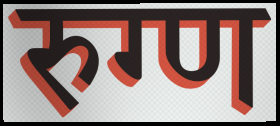
रुग्ण